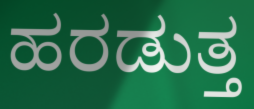
ಹರಡುತ್ತ